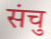
संचु